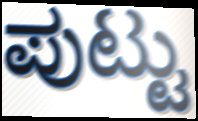
ಪುಟ್ಟು